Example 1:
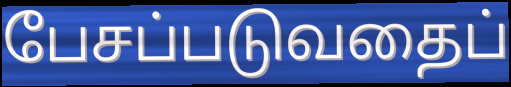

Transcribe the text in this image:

பேசப்படுவதைப்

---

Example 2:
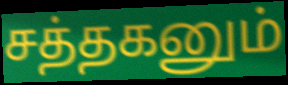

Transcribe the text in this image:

சத்தகனும்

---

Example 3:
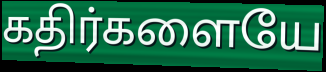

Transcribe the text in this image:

கதிர்களையே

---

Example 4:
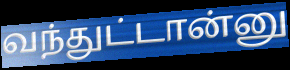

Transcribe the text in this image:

வந்துட்டான்னு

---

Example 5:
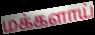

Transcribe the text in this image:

மக்களாய்